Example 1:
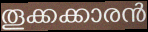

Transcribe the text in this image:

തൂക്കക്കാരൻ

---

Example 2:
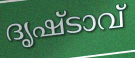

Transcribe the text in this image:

ദൃഷ്ടാവ്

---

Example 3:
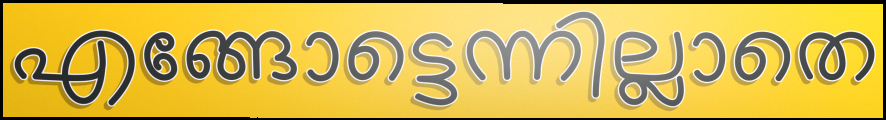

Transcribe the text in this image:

എങ്ങോട്ടെന്നില്ലാതെ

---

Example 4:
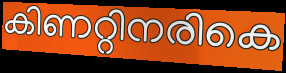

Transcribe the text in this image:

കിണറ്റിനരികെ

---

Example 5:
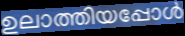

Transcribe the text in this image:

ഉലാത്തിയപ്പോൾ